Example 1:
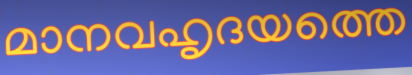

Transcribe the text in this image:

മാനവഹൃദയത്തെ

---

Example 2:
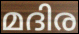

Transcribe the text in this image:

മദിര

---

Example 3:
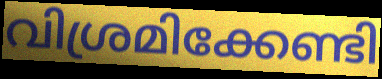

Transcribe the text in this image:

വിശ്രമിക്കേണ്ടി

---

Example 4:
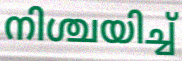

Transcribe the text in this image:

നിശ്ചയിച്ച്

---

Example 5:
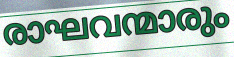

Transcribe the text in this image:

രാഘവന്മാരും